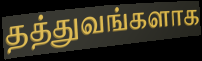
தத்துவங்களாக